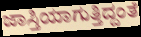
ಜಾಸ್ತಿಯಾಗುತ್ತಿದ್ದಂತೆ